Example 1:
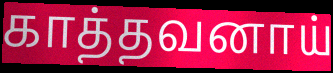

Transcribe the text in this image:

காத்தவனாய்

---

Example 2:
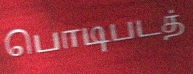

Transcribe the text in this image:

பொடிபடத்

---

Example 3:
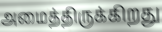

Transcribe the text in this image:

அமைத்திருக்கிறது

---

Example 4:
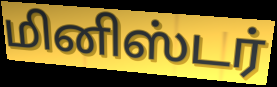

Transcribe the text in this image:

மினிஸ்டர்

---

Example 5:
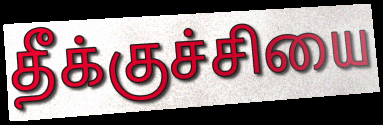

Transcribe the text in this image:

தீக்குச்சியை